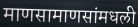
माणसामाणसांमधली